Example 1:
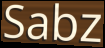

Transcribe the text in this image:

Sabz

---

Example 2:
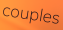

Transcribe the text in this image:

couples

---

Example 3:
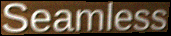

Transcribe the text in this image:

Seamless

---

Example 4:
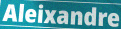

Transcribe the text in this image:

Aleixandre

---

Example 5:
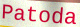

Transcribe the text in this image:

Patoda